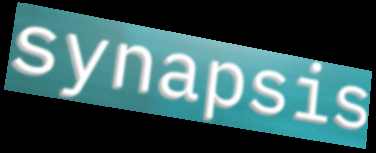
synapsis